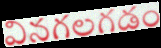
వినగలగడం